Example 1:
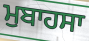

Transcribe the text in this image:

ਮੁਬਾਹਸਾ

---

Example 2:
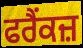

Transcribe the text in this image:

ਫਰੈਂਕਜ਼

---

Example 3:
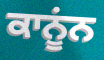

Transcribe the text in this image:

ਕਾਨੂਂਨ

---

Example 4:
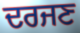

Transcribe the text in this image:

ਦਰਜਣ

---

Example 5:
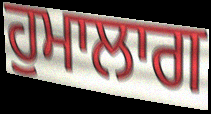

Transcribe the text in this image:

ਹੁਮਾਲਾਗ